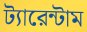
ট্যারেন্টাম